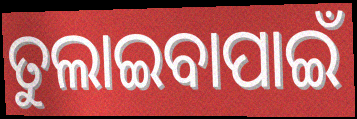
ତୁଲାଇବାପାଇଁ